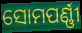
ସୋମପର୍ଣ୍ଣୀ